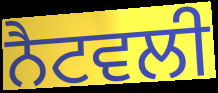
ਨੈਟਵਲੀ